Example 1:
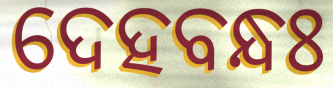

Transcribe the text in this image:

ଦେହବନ୍ଧଃ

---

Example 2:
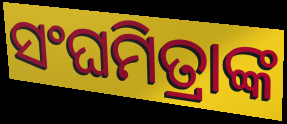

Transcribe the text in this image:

ସଂଘମିତ୍ରାଙ୍କ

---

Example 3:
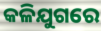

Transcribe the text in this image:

କଳିଯୁଗରେ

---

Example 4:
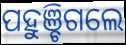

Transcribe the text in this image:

ପହୁଞ୍ଚିଗଲେ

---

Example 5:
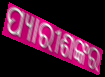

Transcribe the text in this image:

ପ୍ୟାରୀଶଙ୍କର